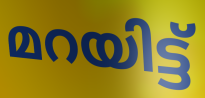
മറയിട്ട്